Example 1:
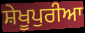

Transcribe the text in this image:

ਸ਼ੇਖੂਪੁਰੀਆ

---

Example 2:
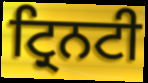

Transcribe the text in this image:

ਟ੍ਰਿਨਟੀ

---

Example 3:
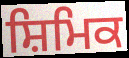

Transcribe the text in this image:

ਸ਼ਿਮਿਕ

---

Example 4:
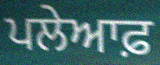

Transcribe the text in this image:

ਪਲੇਆਫ਼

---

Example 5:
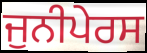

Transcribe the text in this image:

ਜੁਨੀਪੇਰਸ